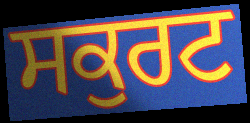
ਸਕੁਰਟ